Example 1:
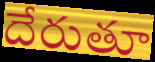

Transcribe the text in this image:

దేరుతూ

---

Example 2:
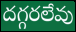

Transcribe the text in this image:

దగ్గరలేవు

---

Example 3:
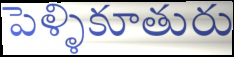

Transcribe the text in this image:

పెళ్ళికూతురు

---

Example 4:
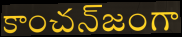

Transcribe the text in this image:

కాంచన్‌జంగా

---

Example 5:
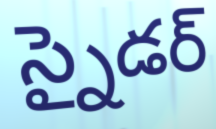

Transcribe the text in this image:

స్నైడర్